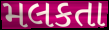
મલકતા